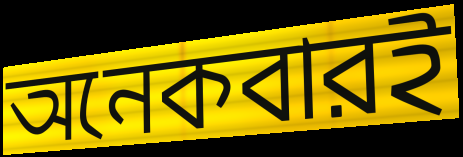
অনেকবারই